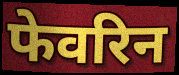
फेवरिन